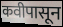
कवीपासून